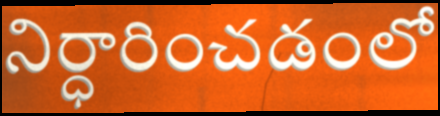
నిర్ధారించడంలో